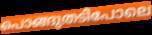
പൊങ്ങുതടിപോലെ